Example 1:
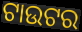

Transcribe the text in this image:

ଟାଉଟର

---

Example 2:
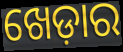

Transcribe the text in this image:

ଖେଡ଼ାର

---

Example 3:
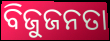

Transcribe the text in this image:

ବିଜୁଜନତା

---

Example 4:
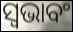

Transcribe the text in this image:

ସ୍ଵଭାବଂ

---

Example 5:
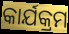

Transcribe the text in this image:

କାର୍ଯକ୍ରମ